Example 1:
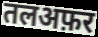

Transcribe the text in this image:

तलअफ़र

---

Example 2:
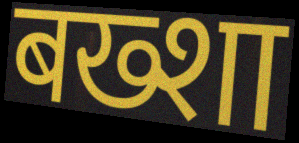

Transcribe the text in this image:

बख्शा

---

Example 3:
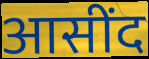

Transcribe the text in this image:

आसींद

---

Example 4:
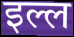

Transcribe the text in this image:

इल्ल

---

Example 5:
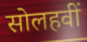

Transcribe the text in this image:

सोलहवीं